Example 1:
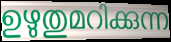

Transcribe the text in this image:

ഉഴുതുമറിക്കുന്ന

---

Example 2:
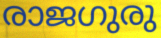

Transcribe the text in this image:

രാജഗുരു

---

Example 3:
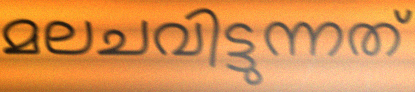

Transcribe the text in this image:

മലചവിട്ടുന്നത്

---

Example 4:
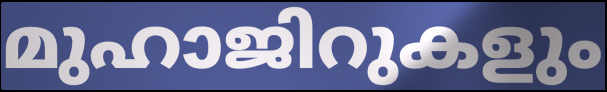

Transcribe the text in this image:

മുഹാജിറുകളും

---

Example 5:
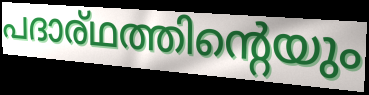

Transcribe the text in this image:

പദാര്ഥത്തിന്റെയും